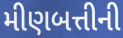
મીણબત્તીની